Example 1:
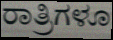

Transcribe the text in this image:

ರಾತ್ರಿಗಳೂ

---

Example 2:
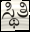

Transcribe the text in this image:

ಸ್ಥಿತಿ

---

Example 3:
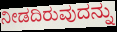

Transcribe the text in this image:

ನೀಡದಿರುವುದನ್ನು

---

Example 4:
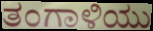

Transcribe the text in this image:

ತಂಗಾಳಿಯು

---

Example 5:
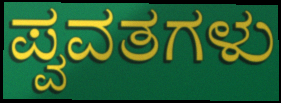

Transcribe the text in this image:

ಪ್ವವತಗಳು